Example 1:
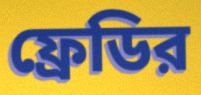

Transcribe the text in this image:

ফ্রেডির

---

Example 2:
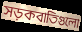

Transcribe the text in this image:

সড়কবাতিগুলো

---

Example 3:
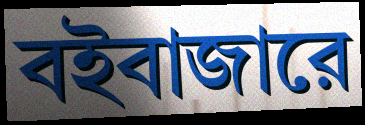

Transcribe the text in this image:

বইবাজারে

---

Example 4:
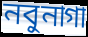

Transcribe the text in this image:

নবুনাগা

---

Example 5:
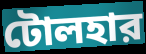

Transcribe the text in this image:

টোলহার